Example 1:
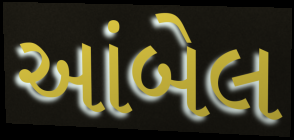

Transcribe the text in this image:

આંબેલ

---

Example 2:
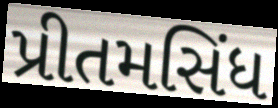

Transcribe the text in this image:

પ્રીતમસિંધ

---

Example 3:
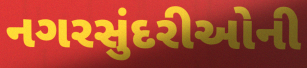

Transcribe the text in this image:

નગરસુંદરીઓની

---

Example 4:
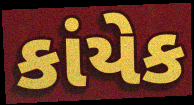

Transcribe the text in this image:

કાંયેક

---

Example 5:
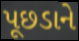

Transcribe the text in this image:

પૂછડાને